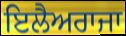
ਇਲੈਅਰਾਜਾ